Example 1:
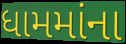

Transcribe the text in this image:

ધામમાંના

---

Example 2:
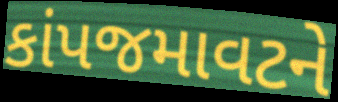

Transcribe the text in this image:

કાંપજમાવટને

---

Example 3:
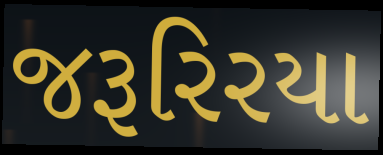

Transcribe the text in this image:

જરૂરિરયા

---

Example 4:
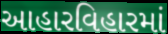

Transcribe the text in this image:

આહારવિહારમાં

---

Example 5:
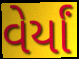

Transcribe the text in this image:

વેર્યાં